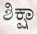
ಶಿಕ್ಷಾ